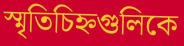
স্মৃতিচিহ্নগুলিকে